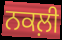
ਨਕਲ਼ੀ